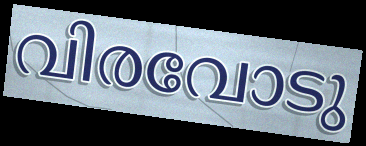
വിരവോടു